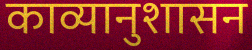
काव्यानुशासन